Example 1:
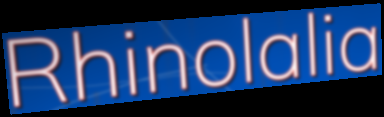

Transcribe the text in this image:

Rhinolalia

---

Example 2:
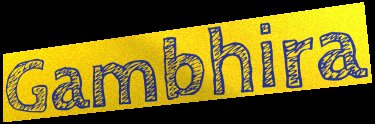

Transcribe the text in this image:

Gambhira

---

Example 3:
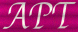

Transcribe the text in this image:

APT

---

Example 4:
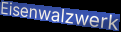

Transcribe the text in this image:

Eisenwalzwerk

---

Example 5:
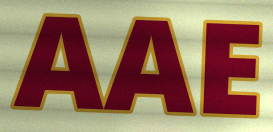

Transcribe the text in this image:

AAE